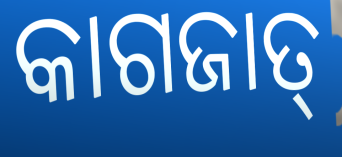
କାଗଜାତ୍